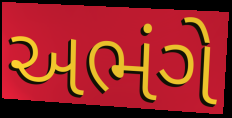
અભંગે